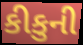
કીકુની